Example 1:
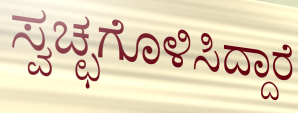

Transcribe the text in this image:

ಸ್ವಚ್ಛಗೊಳಿಸಿದ್ದಾರೆ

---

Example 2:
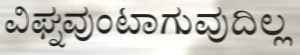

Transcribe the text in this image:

ವಿಘ್ನವುಂಟಾಗುವುದಿಲ್ಲ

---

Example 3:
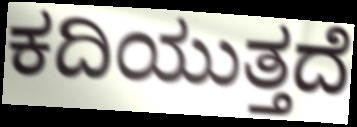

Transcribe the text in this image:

ಕದಿಯುತ್ತದೆ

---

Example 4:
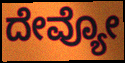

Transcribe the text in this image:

ದೇವ್ಯೋ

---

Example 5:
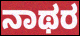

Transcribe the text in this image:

ನಾಥರ